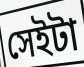
সেইটা